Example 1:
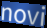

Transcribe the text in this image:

novi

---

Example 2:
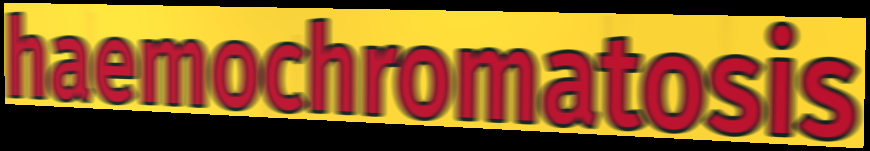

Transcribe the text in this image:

haemochromatosis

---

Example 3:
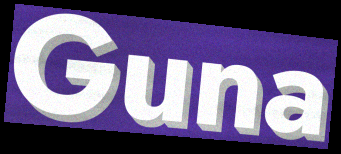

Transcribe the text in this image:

Guna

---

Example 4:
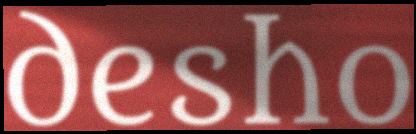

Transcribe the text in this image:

desho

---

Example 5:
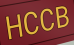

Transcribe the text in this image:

HCCB